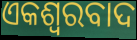
ଏକଶ୍ୱରବାଦ